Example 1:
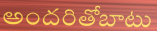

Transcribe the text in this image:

అందరితోబాటు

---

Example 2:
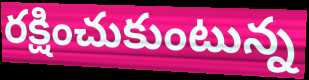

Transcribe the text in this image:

రక్షించుకుంటున్న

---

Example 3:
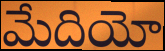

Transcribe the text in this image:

మేదియో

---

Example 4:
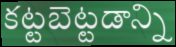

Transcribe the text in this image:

కట్టబెట్టడాన్ని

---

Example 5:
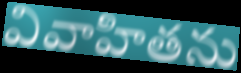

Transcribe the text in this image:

వివాహితను